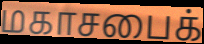
மகாசபைக்